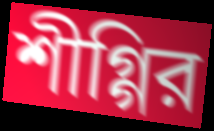
শীগ্গির